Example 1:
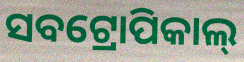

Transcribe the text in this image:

ସବଟ୍ରୋପିକାଲ୍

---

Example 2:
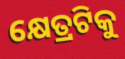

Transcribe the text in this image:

କ୍ଷେତ୍ରଟିକୁ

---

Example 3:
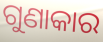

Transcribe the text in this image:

ଗୁଣାକାର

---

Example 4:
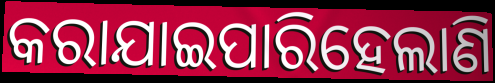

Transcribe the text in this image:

କରାଯାଇପାରିହେଲାଣି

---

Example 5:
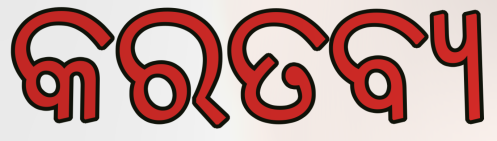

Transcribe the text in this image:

କରତବ୍ୟ